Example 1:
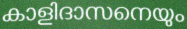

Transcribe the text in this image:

കാളിദാസനെയും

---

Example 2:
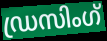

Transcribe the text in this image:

ഡ്രസിംഗ്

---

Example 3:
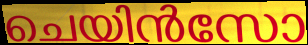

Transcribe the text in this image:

ചെയിൻസോ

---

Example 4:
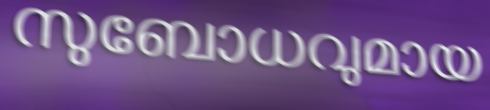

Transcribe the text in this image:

സുബോധവുമായ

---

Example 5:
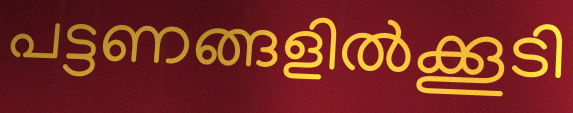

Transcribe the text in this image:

പട്ടണങ്ങളിൽക്കൂടി